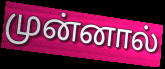
முன்னால்